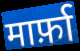
मार्फ़ा